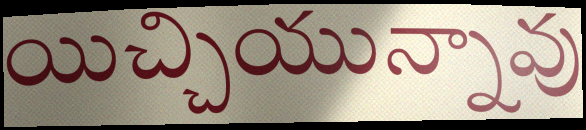
యిచ్చియున్నావు